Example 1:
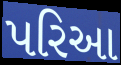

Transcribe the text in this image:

પરિઆ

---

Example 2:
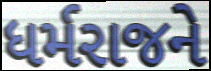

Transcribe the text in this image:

ધર્મરાજને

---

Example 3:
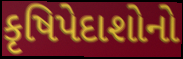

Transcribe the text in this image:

કૃષિપેદાશોનો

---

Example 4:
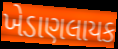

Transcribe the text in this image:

ખેડાણલાયક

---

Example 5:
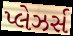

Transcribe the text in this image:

પ્લેઝર્સ